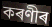
কৰণীৰ